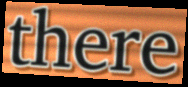
there